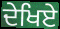
ਦੇਖਿਏ